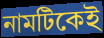
নামটিকেই